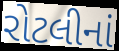
રોટલીનાં